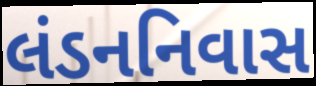
લંડનનિવાસ